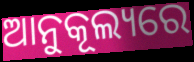
ଆନୁକୂଲ୍ୟରେ